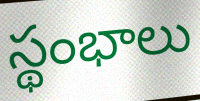
స్థంభాలు